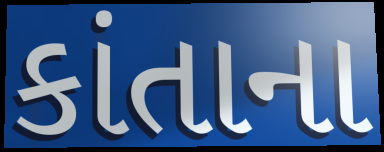
કાંતાના